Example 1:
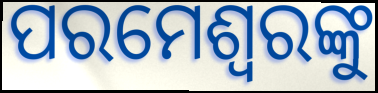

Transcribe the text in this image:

ପରମେଶ୍ୱରଙ୍କୁ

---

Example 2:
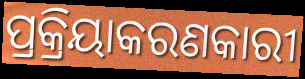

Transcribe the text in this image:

ପ୍ରକ୍ରିୟାକରଣକାରୀ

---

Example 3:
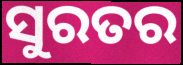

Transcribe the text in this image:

ସୁରତର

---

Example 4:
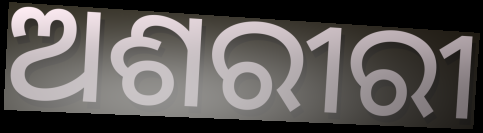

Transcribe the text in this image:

ଅଶରୀରୀ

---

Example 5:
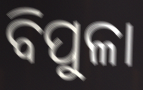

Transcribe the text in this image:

ବିପୁଳା